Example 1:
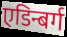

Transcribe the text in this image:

एडिन्बर्ग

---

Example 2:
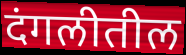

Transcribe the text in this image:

दंगलीतील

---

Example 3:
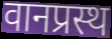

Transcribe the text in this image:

वानप्रस्थ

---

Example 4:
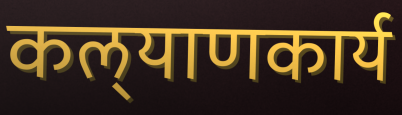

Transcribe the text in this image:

कल्याणकार्य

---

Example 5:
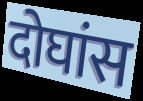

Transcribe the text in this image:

दोघांस